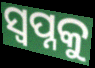
ସ୍ୱପ୍ନକୁ